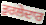
ਤੁਰਲੇਦਾਰ